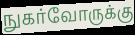
நுகர்வோருக்கு